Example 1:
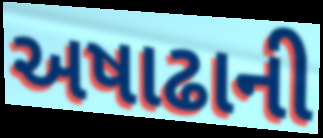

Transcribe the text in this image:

અષાઢાની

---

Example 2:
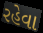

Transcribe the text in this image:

રહેવા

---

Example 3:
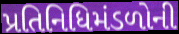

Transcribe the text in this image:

પ્રતિનિધિમંડળોની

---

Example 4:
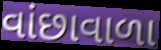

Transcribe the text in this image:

વાંછાવાળા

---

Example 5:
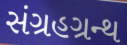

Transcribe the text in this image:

સંગ્રહગ્રન્થ